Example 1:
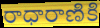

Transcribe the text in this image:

రాధారాణికి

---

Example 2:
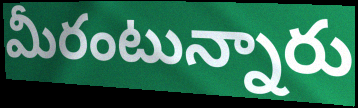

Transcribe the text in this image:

మీరంటున్నారు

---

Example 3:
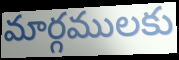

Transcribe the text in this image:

మార్గములకు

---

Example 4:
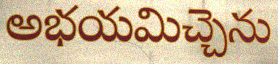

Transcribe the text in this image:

అభయమిచ్చెను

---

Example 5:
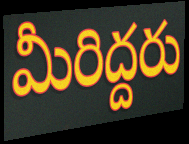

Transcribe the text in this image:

మీరిద్దరు